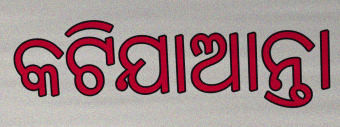
କଟିଯାଆନ୍ତା